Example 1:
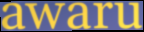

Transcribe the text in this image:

awaru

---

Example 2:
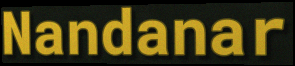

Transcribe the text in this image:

Nandanar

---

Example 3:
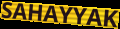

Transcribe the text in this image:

SAHAYYAK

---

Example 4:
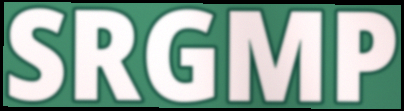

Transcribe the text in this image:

SRGMP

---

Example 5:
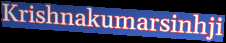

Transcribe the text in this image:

Krishnakumarsinhji